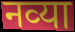
नव्‍या